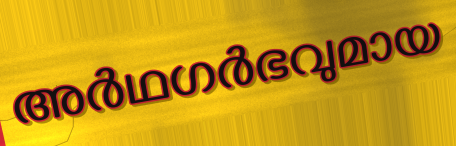
അർഥഗർഭവുമായ